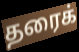
தரைக்